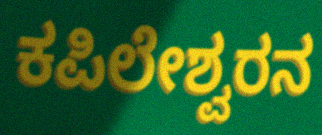
ಕಪಿಲೇಶ್ವರನ